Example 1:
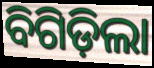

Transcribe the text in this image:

ବିଗିଡ଼ିଲା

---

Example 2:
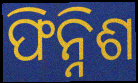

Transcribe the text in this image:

ଫିନ୍ନିଶ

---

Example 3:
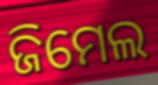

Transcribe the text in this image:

ଜିମେଲ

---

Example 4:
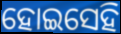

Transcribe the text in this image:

ହୋଇସେହି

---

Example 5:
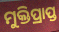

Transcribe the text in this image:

ମୁକ୍ତିପ୍ରାପ୍ତ